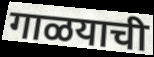
गाळयाची